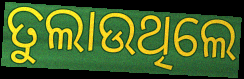
ତୁଲାଉଥିଲେ